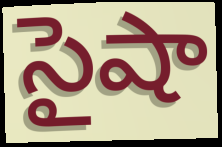
సైషా